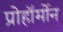
प्रोहॉर्मोन